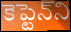
కెప్టెన్‌ని